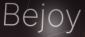
Bejoy